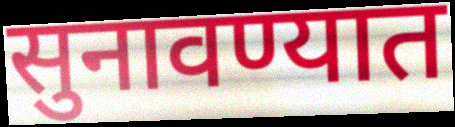
सुनावण्यात